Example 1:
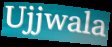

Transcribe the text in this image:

Ujjwala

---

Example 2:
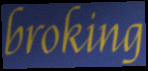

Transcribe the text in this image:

broking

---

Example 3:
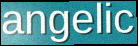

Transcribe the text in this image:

angelic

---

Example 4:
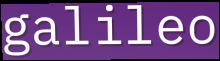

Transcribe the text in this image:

galileo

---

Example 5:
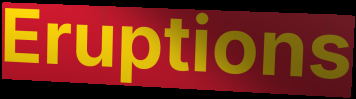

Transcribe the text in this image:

Eruptions